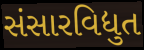
સંસારવિદ્યુત